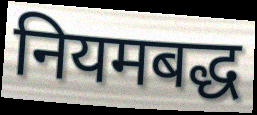
नियमबद्ध